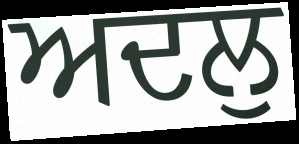
ਅਦਲੁ